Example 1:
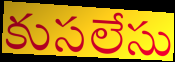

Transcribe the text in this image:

కుసలేసు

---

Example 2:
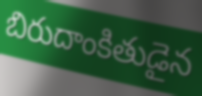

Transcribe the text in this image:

బిరుదాంకితుడైన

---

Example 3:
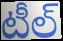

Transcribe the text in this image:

టీల్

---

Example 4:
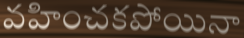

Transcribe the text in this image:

వహించకపోయినా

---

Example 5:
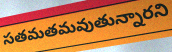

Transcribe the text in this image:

సతమతమవుతున్నారని